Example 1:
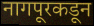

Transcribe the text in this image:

नागपूरकडून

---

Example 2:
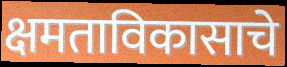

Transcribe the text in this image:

क्षमताविकासाचे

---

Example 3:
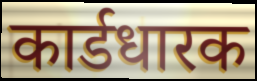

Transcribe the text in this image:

कार्डधारक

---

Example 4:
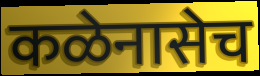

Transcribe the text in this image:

कळेनासेच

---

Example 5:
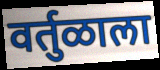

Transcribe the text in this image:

वर्तुळाला